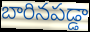
బారినపడ్డా